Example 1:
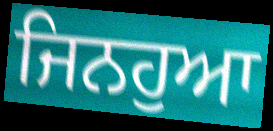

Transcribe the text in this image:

ਜਿਨਹੁਆ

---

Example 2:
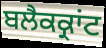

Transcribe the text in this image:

ਬਲੈਕਕ੍ਰਾਂਟ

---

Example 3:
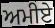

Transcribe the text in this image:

ਅਮੀਏ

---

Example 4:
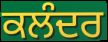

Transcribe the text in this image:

ਕਲੰਦਰ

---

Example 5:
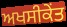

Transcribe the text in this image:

ਅਖਸੀਕੇਂਤ